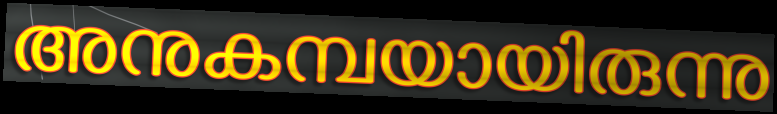
അനുകമ്പയായിരുന്നു